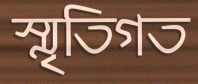
স্মৃতিগত